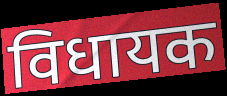
विधायक